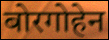
बोरगोहेन